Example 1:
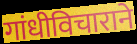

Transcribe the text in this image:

गांधीविचाराने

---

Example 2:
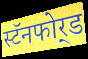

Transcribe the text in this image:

स्टॅनफोर्ड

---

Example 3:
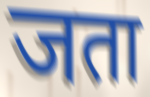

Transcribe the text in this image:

जता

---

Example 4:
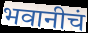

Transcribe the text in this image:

भवानीचं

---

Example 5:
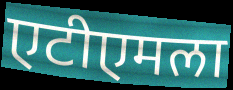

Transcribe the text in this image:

एटीएमला